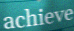
achieve